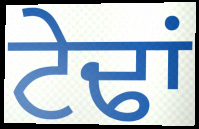
ਟੇਢਾਂ